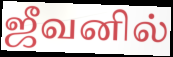
ஜீவனில்